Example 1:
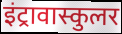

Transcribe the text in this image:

इंट्रावास्कुलर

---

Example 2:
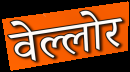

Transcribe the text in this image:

वेल्लोर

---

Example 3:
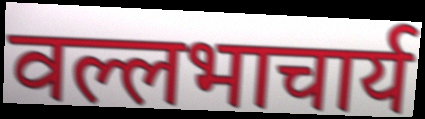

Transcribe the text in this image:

वल्‍लभाचार्य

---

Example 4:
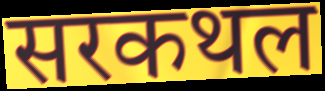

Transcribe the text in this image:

सरकथल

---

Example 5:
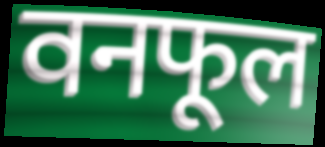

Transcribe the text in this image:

वनफूल